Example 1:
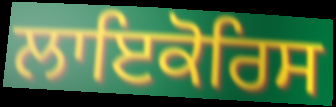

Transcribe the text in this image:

ਲਾਇਕੋਰਿਸ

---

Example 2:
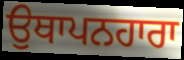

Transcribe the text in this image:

ਉਥਾਪਨਹਾਰਾ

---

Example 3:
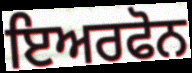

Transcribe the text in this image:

ਇਅਰਫੋਨ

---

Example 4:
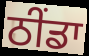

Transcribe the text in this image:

ਠੀਂਡਾ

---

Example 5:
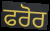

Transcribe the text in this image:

ਫਰੋਰ